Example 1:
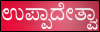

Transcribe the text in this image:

ಉಪ್ಪಾದೇತ್ವಾ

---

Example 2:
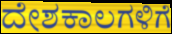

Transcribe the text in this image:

ದೇಶಕಾಲಗಳಿಗೆ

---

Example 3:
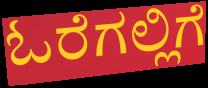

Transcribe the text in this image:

ಓರೆಗಲ್ಲಿಗೆ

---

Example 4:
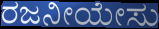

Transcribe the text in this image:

ರಜನೀಯೇಸು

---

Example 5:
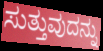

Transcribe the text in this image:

ಸುತ್ತುವುದನ್ನು